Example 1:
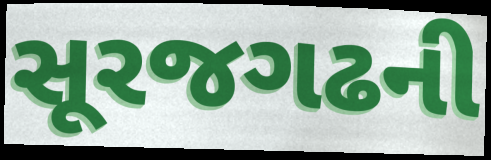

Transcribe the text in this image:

સૂરજગઢની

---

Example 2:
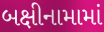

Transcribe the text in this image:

બક્ષીનામામાં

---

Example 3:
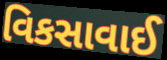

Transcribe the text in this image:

વિકસાવાઈ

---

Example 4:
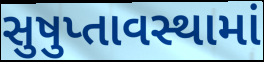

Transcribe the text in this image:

સુષુપ્તાવસ્થામાં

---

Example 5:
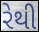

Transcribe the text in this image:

રેથી